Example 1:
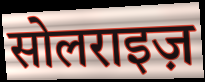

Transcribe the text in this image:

सोलराइज़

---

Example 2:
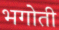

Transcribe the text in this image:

भगोती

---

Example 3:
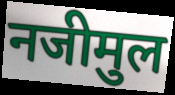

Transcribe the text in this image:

नजीमुल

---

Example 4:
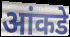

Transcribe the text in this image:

आंकडे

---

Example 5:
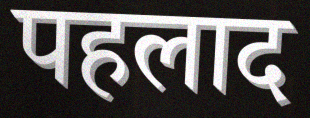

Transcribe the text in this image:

पहलाद